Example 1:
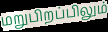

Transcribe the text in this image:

மறுபிறப்பிலும்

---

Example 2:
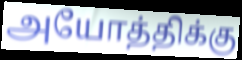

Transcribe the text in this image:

அயோத்திக்கு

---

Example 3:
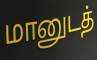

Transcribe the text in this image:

மானுடத்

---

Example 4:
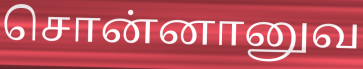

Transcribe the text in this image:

சொன்னானுவ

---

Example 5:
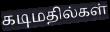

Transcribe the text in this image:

கடிமதில்கள்